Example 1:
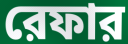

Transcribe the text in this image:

রেফার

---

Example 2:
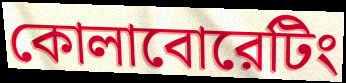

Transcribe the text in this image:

কোলাবোরেটিং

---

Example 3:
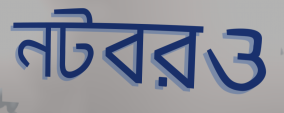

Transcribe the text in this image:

নটবরও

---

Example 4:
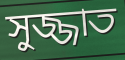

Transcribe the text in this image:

সুজ্জাত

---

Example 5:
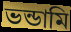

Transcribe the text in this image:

ভন্ডামি